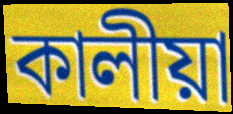
কালীয়া